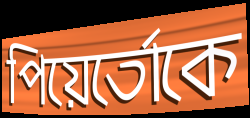
পিয়ের্তোকে